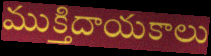
ముక్తిదాయకాలు